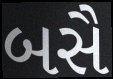
બસૈ